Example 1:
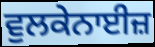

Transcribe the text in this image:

ਵੁਲਕੇਨਾਈਜ਼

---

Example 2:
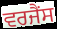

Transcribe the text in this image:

ਵਰਜੈਂਸ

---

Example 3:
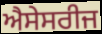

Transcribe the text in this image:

ਐਸੇਸਰੀਜ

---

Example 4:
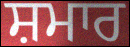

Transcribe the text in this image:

ਸ਼ਮਾਰ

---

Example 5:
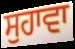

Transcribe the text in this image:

ਸੁਹਾਵਾ